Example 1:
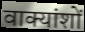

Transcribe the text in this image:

वाक्यांशों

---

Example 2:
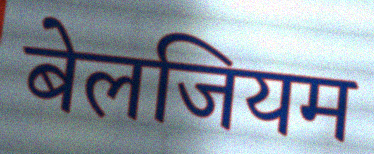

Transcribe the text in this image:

बेलजियम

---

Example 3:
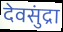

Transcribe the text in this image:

देवसुंद्रा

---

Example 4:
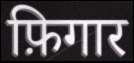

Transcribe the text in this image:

फ़िगार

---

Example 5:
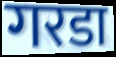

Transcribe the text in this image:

गरडा